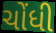
ચોંધી